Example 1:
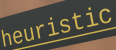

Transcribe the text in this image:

heuristic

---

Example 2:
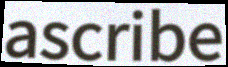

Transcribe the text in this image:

ascribe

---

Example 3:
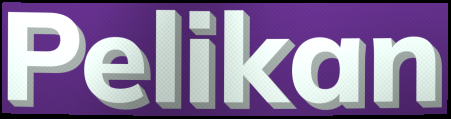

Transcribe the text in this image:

Pelikan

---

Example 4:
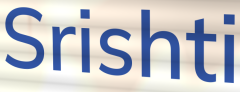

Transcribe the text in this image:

Srishti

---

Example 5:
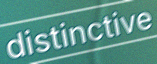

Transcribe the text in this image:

distinctive